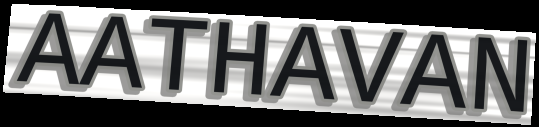
AATHAVAN